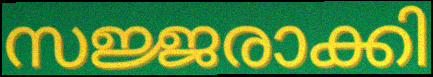
സജ്ജരാക്കി